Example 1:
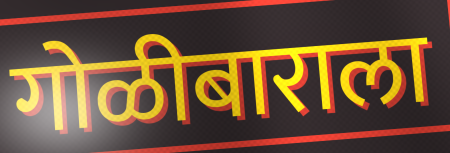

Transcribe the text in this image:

गोळीबाराला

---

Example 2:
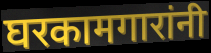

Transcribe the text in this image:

घरकामगारांनी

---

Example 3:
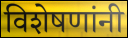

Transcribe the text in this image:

विशेषणांनी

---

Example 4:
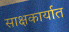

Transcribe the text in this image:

साक्षकार्यात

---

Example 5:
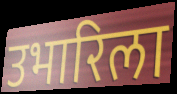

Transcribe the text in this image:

उभारिला